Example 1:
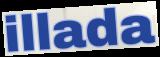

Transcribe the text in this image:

illada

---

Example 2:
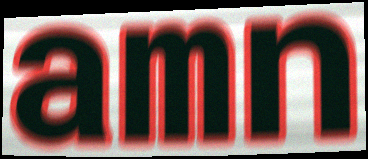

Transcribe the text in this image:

amn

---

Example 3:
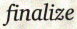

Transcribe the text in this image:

finalize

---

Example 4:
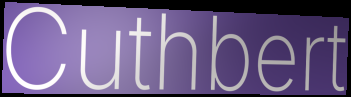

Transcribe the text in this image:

Cuthbert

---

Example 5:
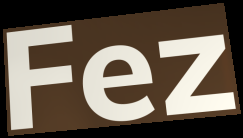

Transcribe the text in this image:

Fez